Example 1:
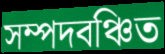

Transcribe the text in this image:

সম্পদবঞ্চিত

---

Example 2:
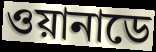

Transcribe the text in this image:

ওয়ানাডে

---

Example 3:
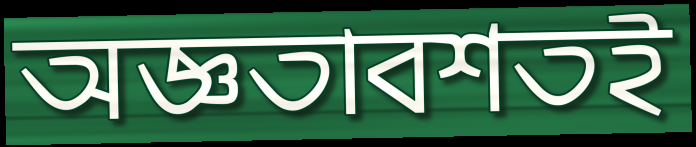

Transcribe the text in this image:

অজ্ঞতাবশতই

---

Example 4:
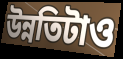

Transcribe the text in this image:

উন্নতিটাও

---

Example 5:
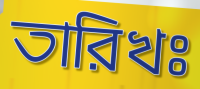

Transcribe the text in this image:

তারিখঃ